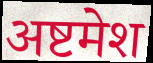
अष्टमेश